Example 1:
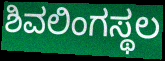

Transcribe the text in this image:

ಶಿವಲಿಂಗಸ್ಥಲ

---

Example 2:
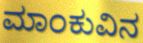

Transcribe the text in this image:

ಮಾಂಕುವಿನ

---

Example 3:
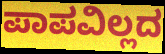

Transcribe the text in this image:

ಪಾಪವಿಲ್ಲದ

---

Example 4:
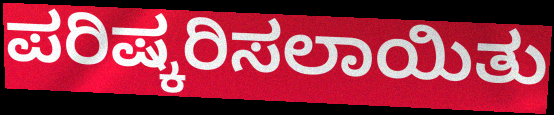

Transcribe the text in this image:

ಪರಿಷ್ಕರಿಸಲಾಯಿತು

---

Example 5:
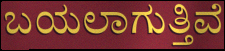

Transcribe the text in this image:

ಬಯಲಾಗುತ್ತಿವೆ